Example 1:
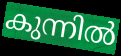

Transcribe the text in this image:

കുന്നിൽ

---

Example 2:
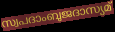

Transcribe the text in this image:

സ്വപദാംബുജദാസ്യമ്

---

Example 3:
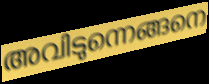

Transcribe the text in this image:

അവിടുന്നെങ്ങനെ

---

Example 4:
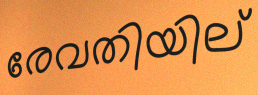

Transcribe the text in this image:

രേവതിയില്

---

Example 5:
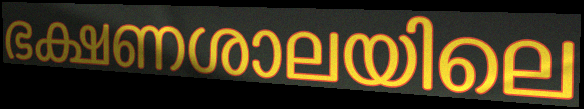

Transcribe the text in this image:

ഭക്ഷണശാലയിലെ